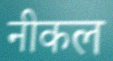
नीकल